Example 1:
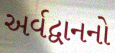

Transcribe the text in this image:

અર્વદ્વાનનો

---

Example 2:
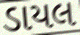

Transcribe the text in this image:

ડાયલ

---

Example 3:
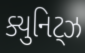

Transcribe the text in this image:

ક્યુનિટ્ઝ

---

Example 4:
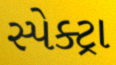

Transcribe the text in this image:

સ્પેક્ટ્રા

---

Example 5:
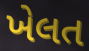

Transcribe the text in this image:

ખેલત